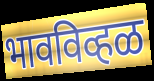
भावविव्हळ